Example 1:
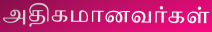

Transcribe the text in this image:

அதிகமானவர்கள்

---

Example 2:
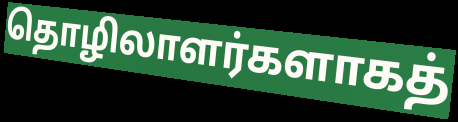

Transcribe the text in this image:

தொழிலாளர்களாகத்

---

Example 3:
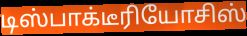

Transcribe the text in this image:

டிஸ்பாக்டீரியோசிஸ்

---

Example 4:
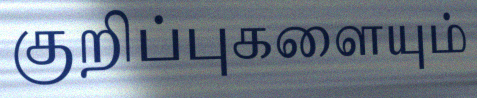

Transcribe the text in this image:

குறிப்புகளையும்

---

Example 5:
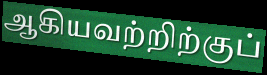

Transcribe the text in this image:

ஆகியவற்றிற்குப்